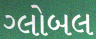
ગ્લોબલ